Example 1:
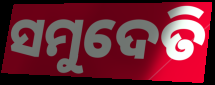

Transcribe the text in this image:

ସମୁଦେତି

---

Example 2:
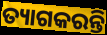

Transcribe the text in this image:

ତ୍ୟାଗକରନ୍ତି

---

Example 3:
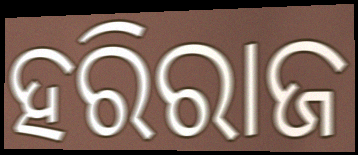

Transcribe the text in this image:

ହରିରାଜ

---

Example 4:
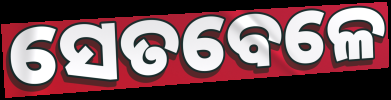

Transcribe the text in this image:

ସେତବେଳେ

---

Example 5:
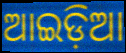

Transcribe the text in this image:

ଆଇଡ଼ିଆ